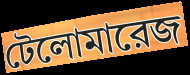
টেলোমারেজ